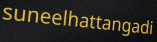
suneelhattangadi